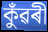
কুঁৱৰী